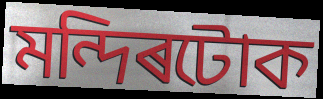
মন্দিৰটোক